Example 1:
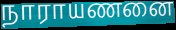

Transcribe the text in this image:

நாராயணனை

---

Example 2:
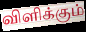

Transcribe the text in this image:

விளிக்கும்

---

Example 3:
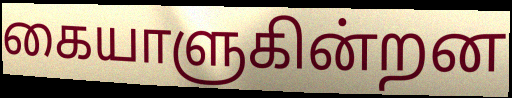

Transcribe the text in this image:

கையாளுகின்றன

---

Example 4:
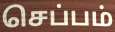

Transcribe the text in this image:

செப்பம்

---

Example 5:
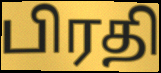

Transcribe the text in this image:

பிரதி